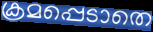
ക്രമപ്പെടാതെ